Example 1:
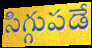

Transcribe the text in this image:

సిగ్గుపడే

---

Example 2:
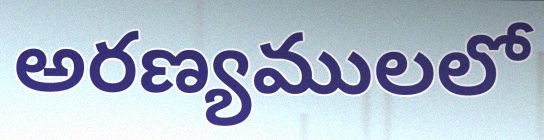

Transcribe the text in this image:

అరణ్యములలో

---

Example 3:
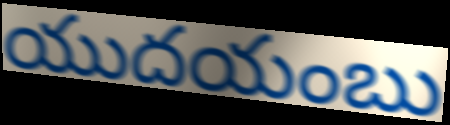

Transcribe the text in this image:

యుదయంబు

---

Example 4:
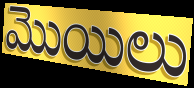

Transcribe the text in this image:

మొయిలు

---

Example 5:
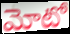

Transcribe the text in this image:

మోటో